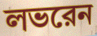
লভরেন